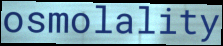
osmolality